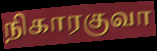
நிகாரகுவா